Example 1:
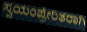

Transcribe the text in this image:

ಸ್ವಯಂಪ್ರೇರಿತರಾಗಿ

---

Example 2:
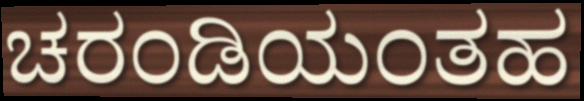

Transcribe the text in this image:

ಚರಂಡಿಯಂತಹ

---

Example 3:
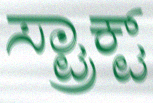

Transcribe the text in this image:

ಸ್ಟ್ರಾಕ್ಟ್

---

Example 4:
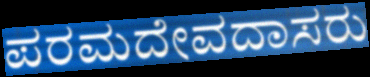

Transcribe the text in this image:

ಪರಮದೇವದಾಸರು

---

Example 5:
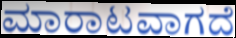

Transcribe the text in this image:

ಮಾರಾಟವಾಗದೆ